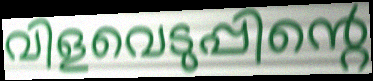
വിളവെടുപ്പിന്റെ